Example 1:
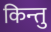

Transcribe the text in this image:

किन्‍तु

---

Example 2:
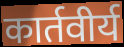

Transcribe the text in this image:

कार्तवीर्य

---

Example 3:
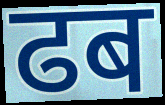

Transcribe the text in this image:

ढब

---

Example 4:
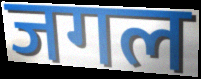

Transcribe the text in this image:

जगल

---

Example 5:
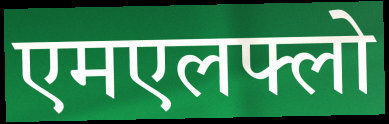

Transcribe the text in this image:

एमएलफ्लो